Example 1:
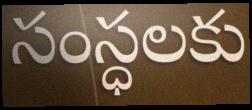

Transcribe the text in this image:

సంస్ధలకు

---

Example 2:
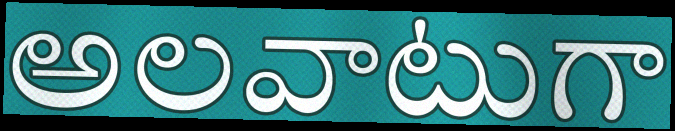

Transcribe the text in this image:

అలవాటుగా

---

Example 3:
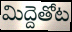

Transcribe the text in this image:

మిద్దెతోట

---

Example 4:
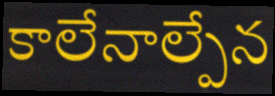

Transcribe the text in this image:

కాలేనాల్పేన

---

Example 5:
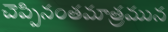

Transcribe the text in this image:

చెప్పినంతమాత్రమున